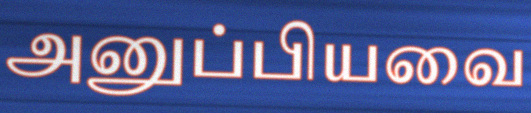
அனுப்பியவை